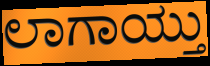
ಲಾಗಾಯ್ತು